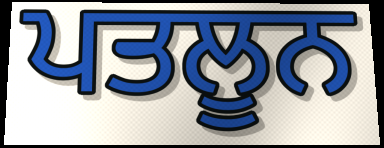
ਪਤਲੂਨ